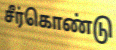
சீர்கொண்டு